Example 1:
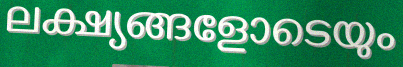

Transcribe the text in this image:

ലക്ഷ്യങ്ങളോടെയും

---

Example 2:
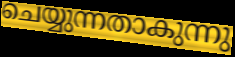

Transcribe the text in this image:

ചെയ്യുന്നതാകുന്നു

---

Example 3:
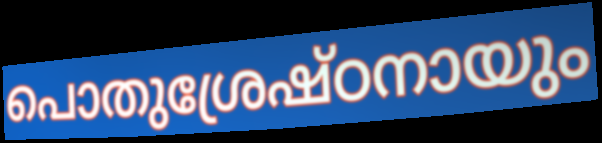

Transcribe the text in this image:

പൊതുശ്രേഷ്ഠനായും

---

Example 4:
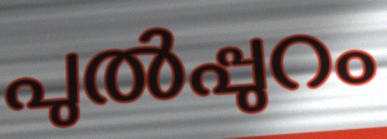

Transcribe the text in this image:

പുൽപ്പുറം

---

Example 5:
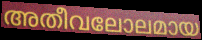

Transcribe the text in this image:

അതീവലോലമായ